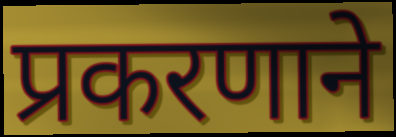
प्रकरणाने